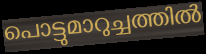
പൊട്ടുമാറുച്ചത്തിൽ